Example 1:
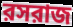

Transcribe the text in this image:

রসরাজ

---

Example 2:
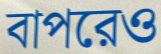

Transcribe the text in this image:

বাপরেও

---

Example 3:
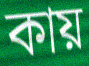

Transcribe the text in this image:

কায়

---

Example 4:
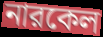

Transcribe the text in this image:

নারকেল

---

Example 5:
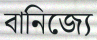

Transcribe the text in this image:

বানিজ্যে